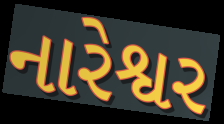
નારેશ્વર